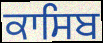
ਕਾਸਿਬ